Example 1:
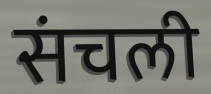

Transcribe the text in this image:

संचली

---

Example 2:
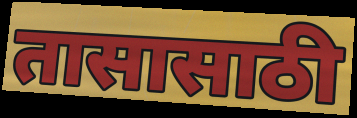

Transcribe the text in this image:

तासासाठी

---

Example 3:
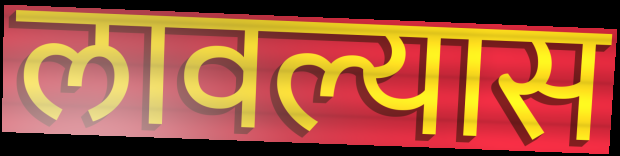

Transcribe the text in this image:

लावल्यास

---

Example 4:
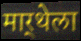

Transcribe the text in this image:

मार्थेला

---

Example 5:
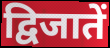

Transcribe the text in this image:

द्विजातें